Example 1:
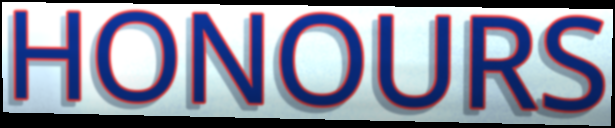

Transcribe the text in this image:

HONOURS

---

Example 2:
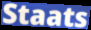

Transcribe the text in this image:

Staats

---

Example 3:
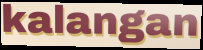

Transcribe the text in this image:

kalangan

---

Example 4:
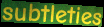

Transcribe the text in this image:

subtleties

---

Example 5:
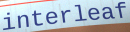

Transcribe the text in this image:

interleaf